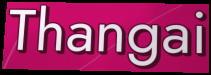
Thangai